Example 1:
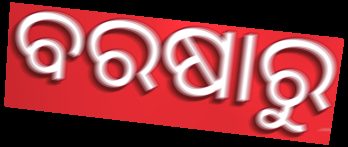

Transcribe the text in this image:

ବରଷାରୁ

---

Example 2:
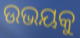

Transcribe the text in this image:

ଉଭୟକୁ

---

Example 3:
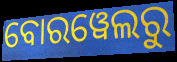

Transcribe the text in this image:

ବୋରୱେଲରୁ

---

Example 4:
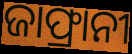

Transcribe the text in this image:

ଜାଫ୍ରାନୀ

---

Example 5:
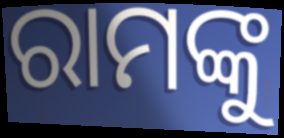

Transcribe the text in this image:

ରାମଙ୍କୁ